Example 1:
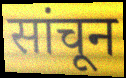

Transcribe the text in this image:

सांचून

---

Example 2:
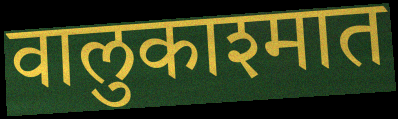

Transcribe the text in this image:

वालुकाश्मात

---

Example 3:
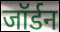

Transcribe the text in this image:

जॉर्डन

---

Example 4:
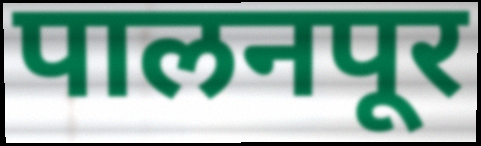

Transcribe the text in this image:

पालनपूर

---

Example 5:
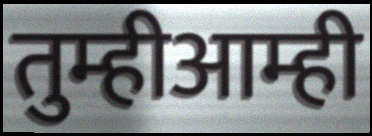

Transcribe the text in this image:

तुम्हीआम्ही